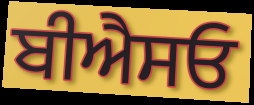
ਬੀਐਸਓ